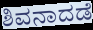
ಶಿವನಾದಡೆ